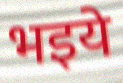
भइये